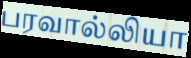
பரவால்லியா